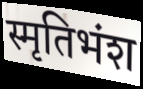
स्मृतिभंश